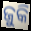
ଜୁକି